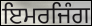
ਇਮਰਜਿੰਗ